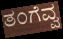
ತಂಗೆವ್ವ